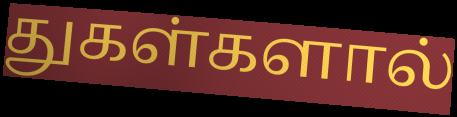
துகள்களால்